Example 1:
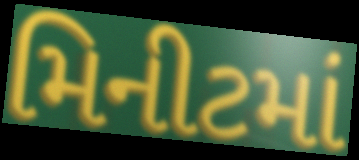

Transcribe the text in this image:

મિનીટમાં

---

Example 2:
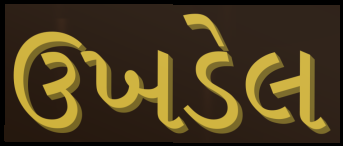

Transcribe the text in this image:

ઉખડેલ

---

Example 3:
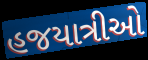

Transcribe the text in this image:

હજયાત્રીઓ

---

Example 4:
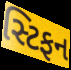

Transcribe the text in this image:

સ્ટિફન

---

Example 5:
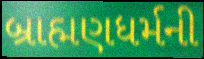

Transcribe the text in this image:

બ્રાહ્મણધર્મની